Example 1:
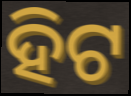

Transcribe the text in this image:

ହିଟ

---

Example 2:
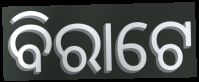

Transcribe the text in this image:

ବିରାଟେ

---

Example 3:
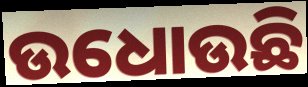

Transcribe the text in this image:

ଉଧୋଉଛି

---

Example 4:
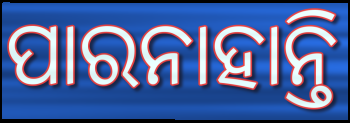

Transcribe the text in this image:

ପାରନାହାନ୍ତି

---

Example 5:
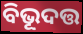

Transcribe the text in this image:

ବିଭୂଦତ୍ତ